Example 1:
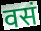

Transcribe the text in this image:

वसं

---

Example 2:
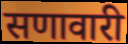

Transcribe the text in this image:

सणावारी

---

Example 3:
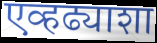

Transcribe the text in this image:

एव्हढ्याशा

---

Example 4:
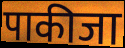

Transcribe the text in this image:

पाकीजा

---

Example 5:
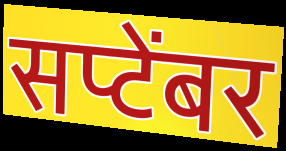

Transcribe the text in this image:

सप्टेंबर